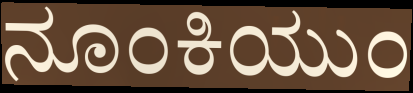
ನೂಂಕಿಯುಂ